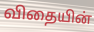
விதையின்